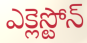
ఎక్లెస్టోన్